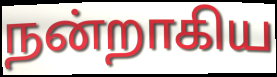
நன்றாகிய